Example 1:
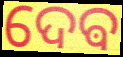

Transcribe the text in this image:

ଦେଵ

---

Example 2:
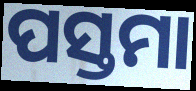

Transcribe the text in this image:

ପସ୍ତମା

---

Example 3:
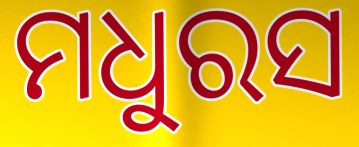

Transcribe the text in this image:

ମଧୁରସ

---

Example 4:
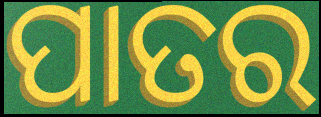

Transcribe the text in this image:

ପାତର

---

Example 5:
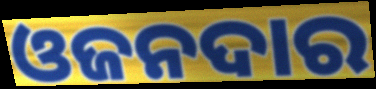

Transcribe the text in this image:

ଓଜନଦାର